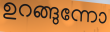
ഉറങ്ങുന്നോ